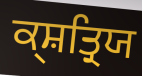
ਕ੍ਸ਼ਤ੍ਰਿਯ